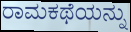
ರಾಮಕಥೆಯನ್ನು